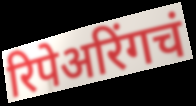
रिपेअरिंगचं